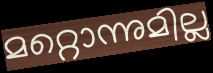
മറ്റൊന്നുമില്ല